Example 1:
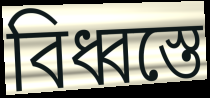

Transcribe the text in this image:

বিধ্বস্তে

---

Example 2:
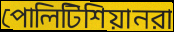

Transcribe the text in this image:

পোলিটিশিয়ানরা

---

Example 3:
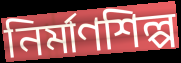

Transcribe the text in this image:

নির্মাণশিল্প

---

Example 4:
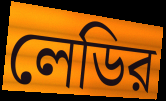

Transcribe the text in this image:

লেডির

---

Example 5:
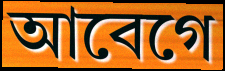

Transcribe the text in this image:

আবেগে